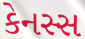
કેનસ્સ